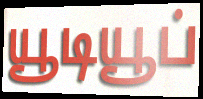
யூடியூப்